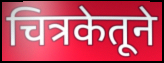
चित्रकेतूने